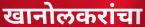
खानोलकरांचा